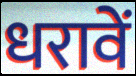
धरावें